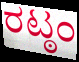
ರಟ್ಠಂ